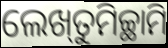
ଲେଖ୍‌ତୁମିଚ୍ଛାମି